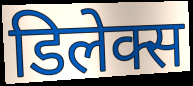
डिलेक्स